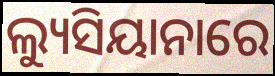
ଲ୍ୟୁସିୟାନାରେ